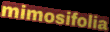
mimosifolia